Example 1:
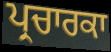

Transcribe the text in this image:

ਪ੍ਰਚਾਰਕਾ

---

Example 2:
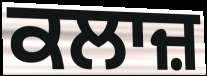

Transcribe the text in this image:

ਕਲਾਜ਼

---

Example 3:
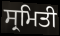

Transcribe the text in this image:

ਸ੍ਰਮਿਤੀ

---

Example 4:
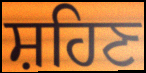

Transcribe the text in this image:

ਸ਼ਹਿਣ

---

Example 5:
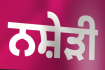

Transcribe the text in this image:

ਨਸ਼ੇੜੀ